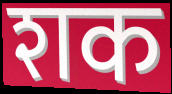
शक